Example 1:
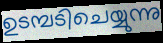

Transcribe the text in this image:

ഉടമ്പടിചെയ്യുന്നു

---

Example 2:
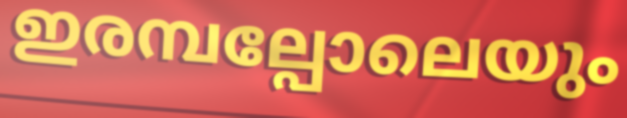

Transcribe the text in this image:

ഇരമ്പല്പോലെയും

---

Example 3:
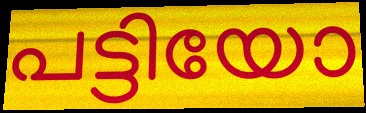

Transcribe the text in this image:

പട്ടിയോ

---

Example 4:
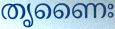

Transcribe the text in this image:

തൃണൈഃ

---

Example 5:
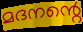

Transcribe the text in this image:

മദനന്റെ